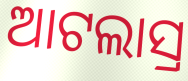
ଆଟଲାସ୍ର